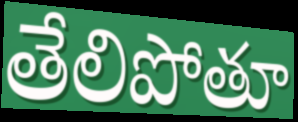
తేలిపోతూ